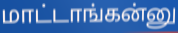
மாட்டாங்கன்னு